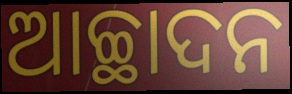
ଆଚ୍ଛାଦନ